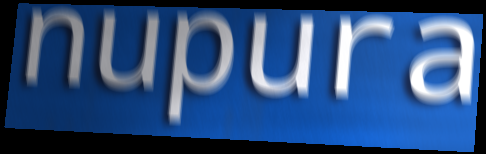
nupura